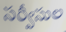
సర్వీసుల